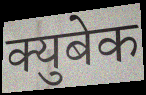
क्युबेक